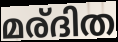
മര്ദിത